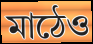
মাঠেও